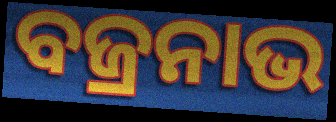
ବଜ୍ରନାଭ